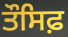
ਤੌਸਿਫ਼